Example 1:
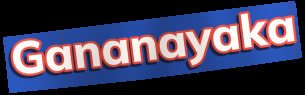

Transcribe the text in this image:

Gananayaka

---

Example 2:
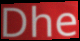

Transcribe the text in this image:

Dhe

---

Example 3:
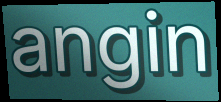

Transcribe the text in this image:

angin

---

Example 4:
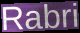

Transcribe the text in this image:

Rabri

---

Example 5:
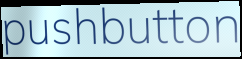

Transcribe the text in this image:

pushbutton